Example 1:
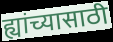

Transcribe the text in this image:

ह्यांच्यासाठी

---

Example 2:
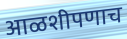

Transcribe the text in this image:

आळशीपणाच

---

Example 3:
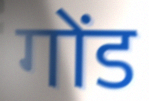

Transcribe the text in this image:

गोंड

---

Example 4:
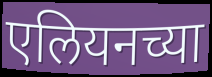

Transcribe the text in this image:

एलियनच्या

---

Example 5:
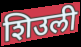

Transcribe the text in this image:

शिउली